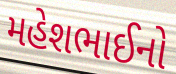
મહેશભાઈનો